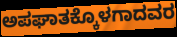
ಅಪಘಾತಕ್ಕೊಳಗಾದವರ